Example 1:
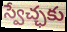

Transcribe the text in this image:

స్వేచ్ఛకు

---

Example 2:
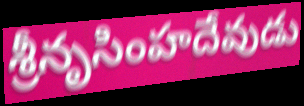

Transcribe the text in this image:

శ్రీనృసింహదేవుడు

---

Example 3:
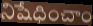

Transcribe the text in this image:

నిషేధించాం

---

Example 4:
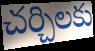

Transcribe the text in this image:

చర్చిలకు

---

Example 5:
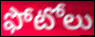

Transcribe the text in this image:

ఫోటోలు